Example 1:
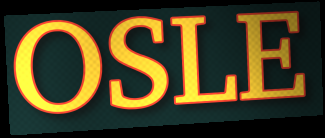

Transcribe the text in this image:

OSLE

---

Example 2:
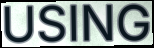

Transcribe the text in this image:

USING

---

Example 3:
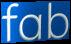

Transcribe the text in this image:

fab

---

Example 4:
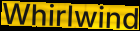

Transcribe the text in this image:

Whirlwind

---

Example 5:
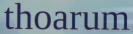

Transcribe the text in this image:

thoarum